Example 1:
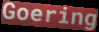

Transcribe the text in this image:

Goering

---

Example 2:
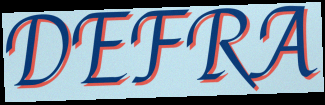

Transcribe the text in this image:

DEFRA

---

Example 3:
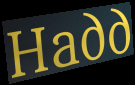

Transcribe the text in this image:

Hadd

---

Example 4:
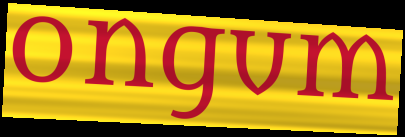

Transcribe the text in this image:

ongum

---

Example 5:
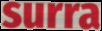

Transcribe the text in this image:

surra